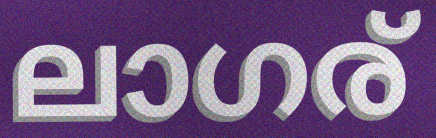
ലാഗര്